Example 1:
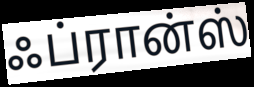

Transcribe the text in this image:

ஃப்ரான்ஸ்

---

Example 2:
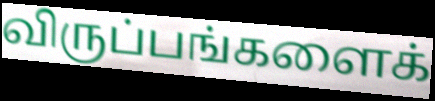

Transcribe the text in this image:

விருப்பங்களைக்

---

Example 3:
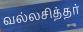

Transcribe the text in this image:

வல்லசித்தர்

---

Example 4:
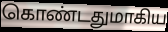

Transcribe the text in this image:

கொண்டதுமாகிய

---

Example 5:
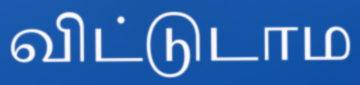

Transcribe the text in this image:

விட்டுடாம